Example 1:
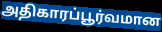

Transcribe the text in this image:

அதிகாரப்பூர்வமான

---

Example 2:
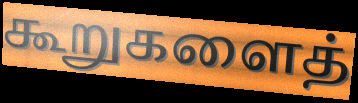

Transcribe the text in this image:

கூறுகளைத்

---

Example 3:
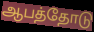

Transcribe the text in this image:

ஆபத்தோடு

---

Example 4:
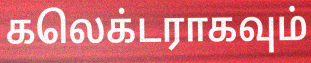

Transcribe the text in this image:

கலெக்டராகவும்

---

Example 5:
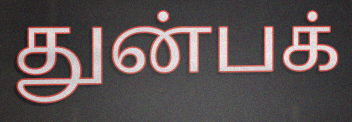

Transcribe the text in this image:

துன்பக்